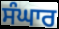
ਸੰਘਾਰ